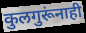
कुलगुरूंनाही